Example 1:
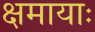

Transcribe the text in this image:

क्षमायाः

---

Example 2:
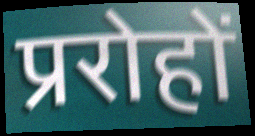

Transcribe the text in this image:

प्ररोहों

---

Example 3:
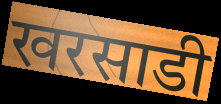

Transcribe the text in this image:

खरसाडी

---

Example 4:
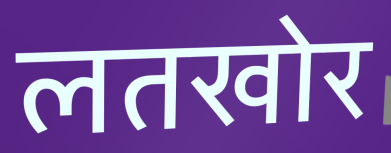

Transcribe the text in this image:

लतखोर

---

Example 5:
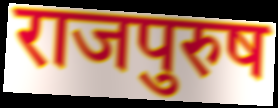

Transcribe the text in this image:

राजपुरुष